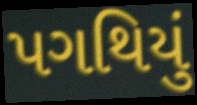
પગથિયું